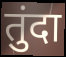
तुंदा